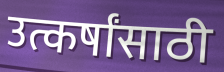
उत्कर्षांसाठी